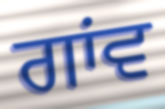
ਗਾਂਵ